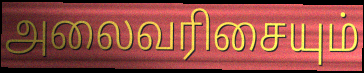
அலைவரிசையும்